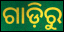
ଗାଡ଼ିରୁ